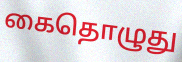
கைதொழுது